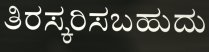
ತಿರಸ್ಕರಿಸಬಹುದು